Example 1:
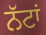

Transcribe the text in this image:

ਨੱਟਾਂ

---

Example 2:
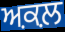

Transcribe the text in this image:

ਅ਼ਕ਼ਲ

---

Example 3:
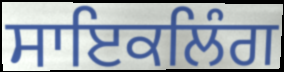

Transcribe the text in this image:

ਸਾਇਕਲਿੰਗ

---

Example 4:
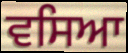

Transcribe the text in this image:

ਵਸਿਆ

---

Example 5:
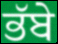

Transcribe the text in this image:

ਭੱਬੇ